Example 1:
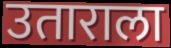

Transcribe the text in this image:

उताराला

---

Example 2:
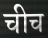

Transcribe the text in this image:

चीच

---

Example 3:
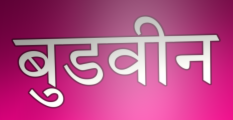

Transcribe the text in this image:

बुडवीन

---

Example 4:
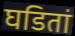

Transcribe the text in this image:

घडितां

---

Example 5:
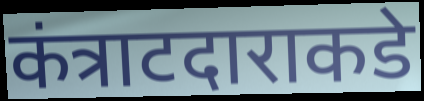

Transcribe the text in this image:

कंत्राटदाराकडे